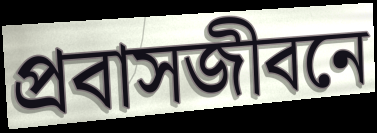
প্রবাসজীবনে